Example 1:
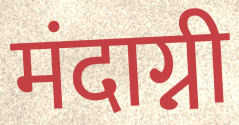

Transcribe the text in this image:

मंदाग्नी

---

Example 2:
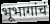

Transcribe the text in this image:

भूभागांचं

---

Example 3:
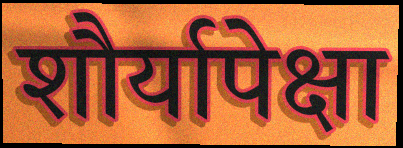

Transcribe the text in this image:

शौर्यापेक्षा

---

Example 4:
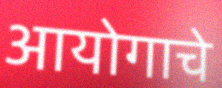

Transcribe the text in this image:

आयोगाचे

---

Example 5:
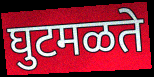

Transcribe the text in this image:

घुटमळते